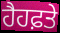
ਹੈਹਫ਼ਤੇ